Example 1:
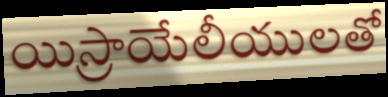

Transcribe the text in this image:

యిస్రాయేలీయులతో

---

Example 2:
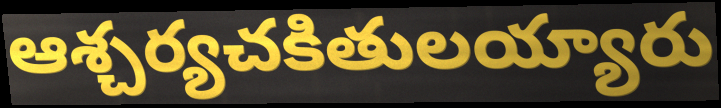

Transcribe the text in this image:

ఆశ్చర్యచకితులయ్యారు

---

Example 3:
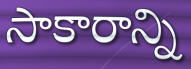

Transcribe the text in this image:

సాకారాన్ని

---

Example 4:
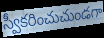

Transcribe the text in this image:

స్వీకరించుచుండగా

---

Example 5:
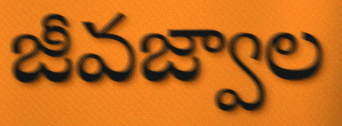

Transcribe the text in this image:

జీవజ్వాల